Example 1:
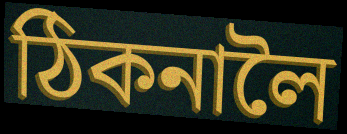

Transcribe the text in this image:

ঠিকনালৈ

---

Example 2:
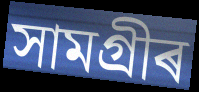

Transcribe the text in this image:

সামগ্ৰীৰ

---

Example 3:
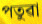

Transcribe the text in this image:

পতুৱা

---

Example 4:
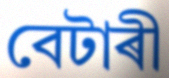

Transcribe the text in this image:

বেটাৰী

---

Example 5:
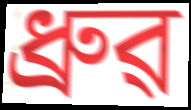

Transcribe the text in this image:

ধ্ৰুৱ